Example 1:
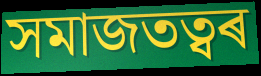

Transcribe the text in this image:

সমাজতত্বৰ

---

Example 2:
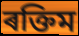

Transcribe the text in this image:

ৰক্তিম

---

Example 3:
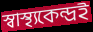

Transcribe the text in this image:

স্বাস্থ্যকেন্দ্ৰই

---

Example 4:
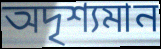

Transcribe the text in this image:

অদৃশ্যমান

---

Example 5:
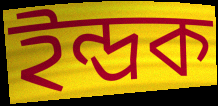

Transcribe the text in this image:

ইন্দ্ৰক